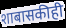
शाबासकीही